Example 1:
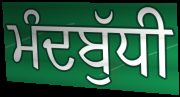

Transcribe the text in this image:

ਮੰਦਬੁੱਧੀ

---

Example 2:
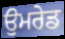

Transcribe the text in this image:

ਉਮਰੇਡ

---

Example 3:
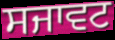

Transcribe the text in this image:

ਸਜਾਵਟ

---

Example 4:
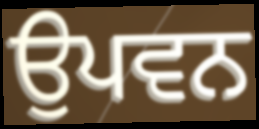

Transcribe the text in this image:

ਉਪਵਨ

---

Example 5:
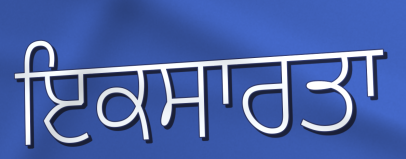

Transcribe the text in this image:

ਇਕਸਾਰਤਾ